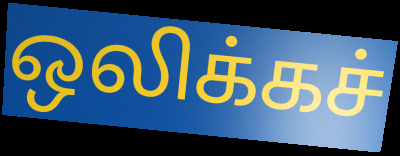
ஒலிக்கச்